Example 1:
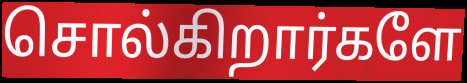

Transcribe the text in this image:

சொல்கிறார்களே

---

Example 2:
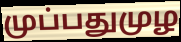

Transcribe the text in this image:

முப்பதுமுழ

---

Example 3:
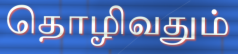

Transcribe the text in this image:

தொழிவதும்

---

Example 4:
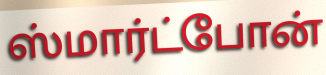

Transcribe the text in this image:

ஸ்மார்ட்போன்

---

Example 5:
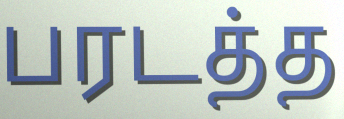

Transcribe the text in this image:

பரடத்த